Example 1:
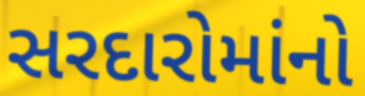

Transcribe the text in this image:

સરદારોમાંનો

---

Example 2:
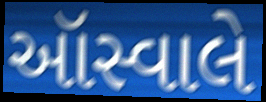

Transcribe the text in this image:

ઑસ્વાલે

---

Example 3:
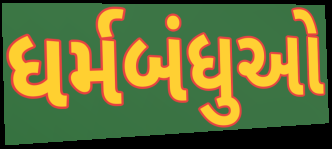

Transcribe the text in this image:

ધર્મબંધુઓ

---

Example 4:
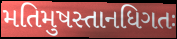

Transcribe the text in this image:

મતિમુષસ્તાનધિગતઃ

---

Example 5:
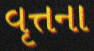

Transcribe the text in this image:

વૃત્તના